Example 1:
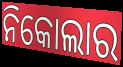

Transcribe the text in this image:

ନିକୋଲାର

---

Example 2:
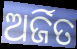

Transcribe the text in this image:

ଅର୍ଜିତ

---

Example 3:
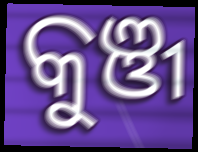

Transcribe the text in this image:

କୁଞ୍ଜ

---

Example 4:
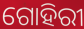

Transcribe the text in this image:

ଗୋହିରୀ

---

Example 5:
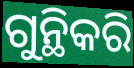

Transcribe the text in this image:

ଗୁନ୍ଥିକରି